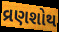
વ્રણશોથ